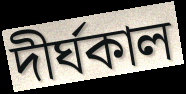
দীর্ঘকাল